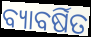
ବ୍ୟାବର୍ଷିତ